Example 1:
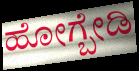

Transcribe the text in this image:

ಹೋಗ್ಬೇಡಿ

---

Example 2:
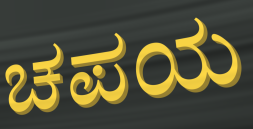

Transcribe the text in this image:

ಚಪಯ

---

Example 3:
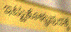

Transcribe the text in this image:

ಇಟ್ಟುಕೊಳ್ಳುವುದಕ್ಕೆ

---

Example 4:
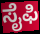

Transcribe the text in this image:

ಸೈಫಿ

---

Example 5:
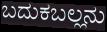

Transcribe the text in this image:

ಬದುಕಬಲ್ಲನು